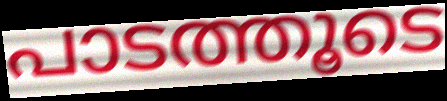
പാടത്തൂടെ